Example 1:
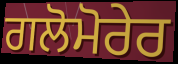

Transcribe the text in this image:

ਗਲੋਮੋਰੇਰ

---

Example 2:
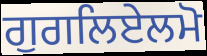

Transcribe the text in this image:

ਗੁਗਲਿਏਲਮੋ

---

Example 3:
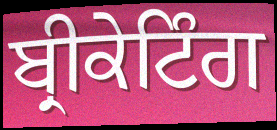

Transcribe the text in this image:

ਬ੍ਰੀਕੇਟਿੰਗ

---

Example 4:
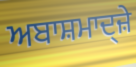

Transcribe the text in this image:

ਅਬਾਸ਼ਮਾਦ੍ਜ਼ੇ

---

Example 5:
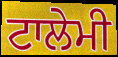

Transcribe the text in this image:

ਟਾਲੇਮੀ